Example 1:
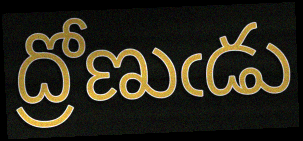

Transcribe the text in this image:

ద్రోణుఁడు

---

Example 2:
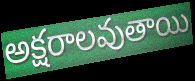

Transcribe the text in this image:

అక్షరాలవుతాయి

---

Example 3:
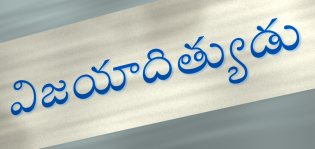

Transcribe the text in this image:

విజయాదిత్యుడు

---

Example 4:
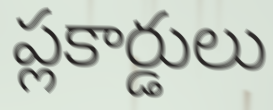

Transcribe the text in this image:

ప్లకార్డులు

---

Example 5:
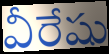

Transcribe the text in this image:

వీరేషు